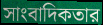
সাংবাদিকতার